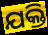
ଯକ୍ତି